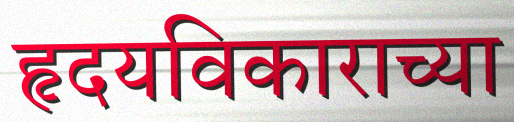
हृदयविकाराच्या